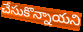
చేసుకొన్నాయని